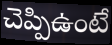
చెప్పిఉంటే